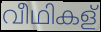
വീഥികള്